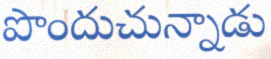
పొందుచున్నాడు